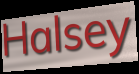
Halsey